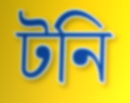
টনি